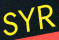
SYR